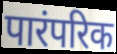
पारंपरिक